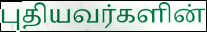
புதியவர்களின்